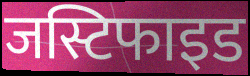
जस्टिफाइड